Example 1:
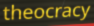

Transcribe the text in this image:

theocracy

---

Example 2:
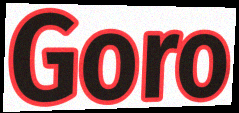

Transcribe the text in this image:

Goro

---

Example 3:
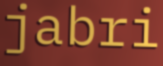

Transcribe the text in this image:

jabri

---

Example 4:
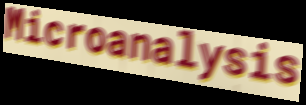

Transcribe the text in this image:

Microanalysis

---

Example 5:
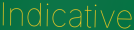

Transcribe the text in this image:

Indicative